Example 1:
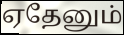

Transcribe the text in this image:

ஏதேனும்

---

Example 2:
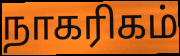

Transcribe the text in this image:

நாகரிகம்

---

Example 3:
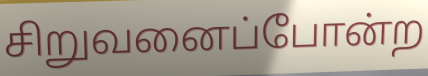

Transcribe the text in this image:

சிறுவனைப்போன்ற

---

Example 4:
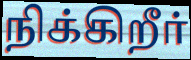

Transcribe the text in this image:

நிக்கிறீர்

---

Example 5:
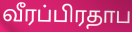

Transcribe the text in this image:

வீரப்பிரதாப